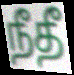
நீதீ